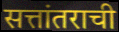
सत्तांतराची